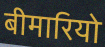
बीमारियो